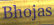
Bhojas